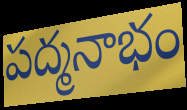
పద్మనాభం